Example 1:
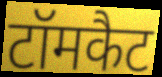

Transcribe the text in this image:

टॉमकैट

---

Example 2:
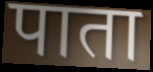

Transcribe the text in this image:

पाता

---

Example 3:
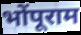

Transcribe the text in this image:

भोंपूराम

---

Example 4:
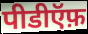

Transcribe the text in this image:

पीडीऍफ़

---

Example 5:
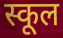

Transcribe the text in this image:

स्कूल